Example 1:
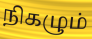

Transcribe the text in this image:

நிகழும்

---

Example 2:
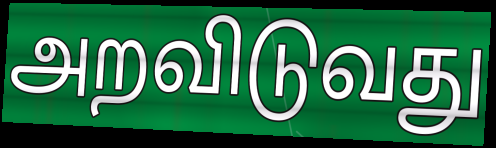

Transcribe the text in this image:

அறவிடுவது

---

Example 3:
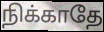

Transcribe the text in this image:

நிக்காதே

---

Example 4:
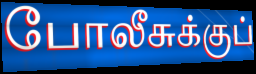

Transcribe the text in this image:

போலீசுக்குப்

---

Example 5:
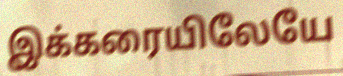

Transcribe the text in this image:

இக்கரையிலேயே